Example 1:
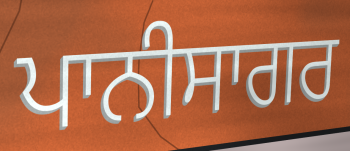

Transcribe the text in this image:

ਪਾਨੀਸਾਗਰ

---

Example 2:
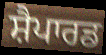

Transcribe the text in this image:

ਸ਼ੈਪਾਰਡ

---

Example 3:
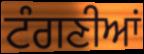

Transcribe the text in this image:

ਟੰਗਣੀਆਂ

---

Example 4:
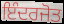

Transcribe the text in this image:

ਇੰਦਰਜੋਤ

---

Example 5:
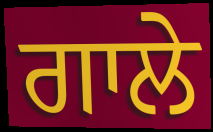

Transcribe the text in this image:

ਗਾਲੇ